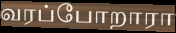
வரப்போறாரா